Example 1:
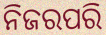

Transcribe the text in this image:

ନିଜରପରି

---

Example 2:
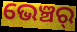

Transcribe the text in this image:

ଭେଞ୍ଚର୍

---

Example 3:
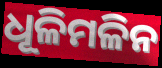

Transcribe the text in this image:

ଧୂଳିମଳିନ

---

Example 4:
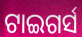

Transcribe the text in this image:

ଟାଇଗର୍ସ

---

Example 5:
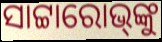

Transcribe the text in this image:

ସାଟ୍ଟାରୋଭ୍‌ଙ୍କୁ